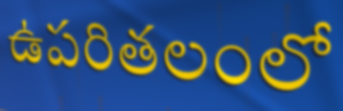
ఉపరితలంలో